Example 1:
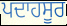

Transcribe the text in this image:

ਪਦਾਹਸੂਰ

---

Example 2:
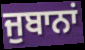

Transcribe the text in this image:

ਜੁਬਾਨਾਂ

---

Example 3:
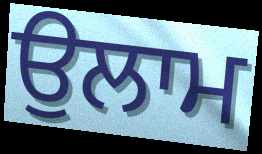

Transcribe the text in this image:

ਉਲਾਮ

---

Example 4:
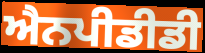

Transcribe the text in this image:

ਐਨਪੀਡੀਡੀ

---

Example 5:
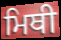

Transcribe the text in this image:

ਮਿਥੀ